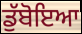
ਡੁੱਬੋਇਆ